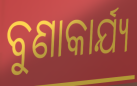
ବୁଣାକାର୍ଯ୍ୟ